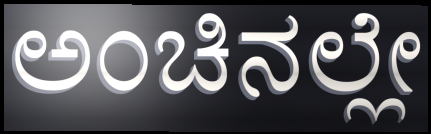
ಅಂಚಿನಲ್ಲೇ